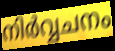
നിർവ്വചനം